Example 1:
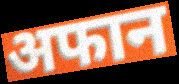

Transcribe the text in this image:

अफान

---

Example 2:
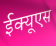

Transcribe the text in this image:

ईक्यूएस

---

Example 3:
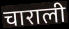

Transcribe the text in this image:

चाराली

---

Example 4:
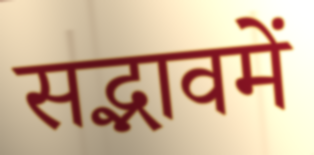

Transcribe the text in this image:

सद्भावमें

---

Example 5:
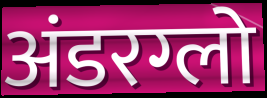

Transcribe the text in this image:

अंडरग्लो